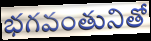
భగవంతునితో